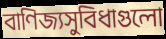
বাণিজ্যসুবিধাগুলো